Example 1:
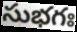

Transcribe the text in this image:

సుభగః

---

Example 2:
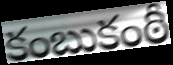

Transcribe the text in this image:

కంబుకంఠీ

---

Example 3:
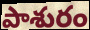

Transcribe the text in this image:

పాశురం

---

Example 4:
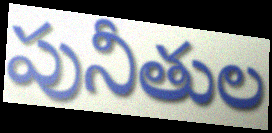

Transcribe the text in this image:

పునీతుల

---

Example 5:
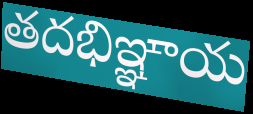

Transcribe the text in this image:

తదభిఞ్ఞాయ